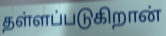
தள்ளப்படுகிறான்